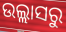
ଉଲ୍ଲାସରୁ